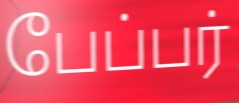
பேப்பர்